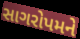
સાગરોપમને